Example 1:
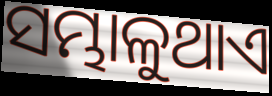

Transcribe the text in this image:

ସମ୍ଭାଳୁଥାଏ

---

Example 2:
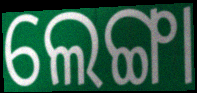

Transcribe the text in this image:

ଲେଙ୍ଗା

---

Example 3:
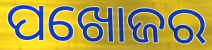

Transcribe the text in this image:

ପଖୋଜର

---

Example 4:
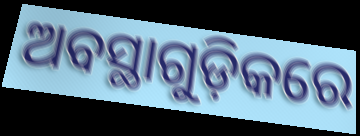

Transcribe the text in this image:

ଅବସ୍ଥାଗୁଡ଼ିକରେ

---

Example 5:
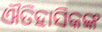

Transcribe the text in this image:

ଐତିହାସିକଙ୍କ